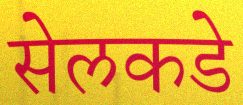
सेलकडे